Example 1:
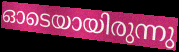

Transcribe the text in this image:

ഓടെയായിരുന്നു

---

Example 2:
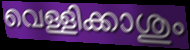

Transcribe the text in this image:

വെള്ളിക്കാശും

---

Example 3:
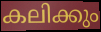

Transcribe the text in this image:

കലിക്കും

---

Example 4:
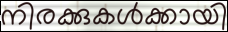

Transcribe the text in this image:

നിരക്കുകൾക്കായി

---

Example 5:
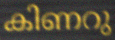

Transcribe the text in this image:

കിണറു